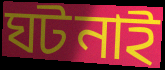
ঘটনাই